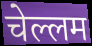
चेल्लम